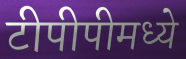
टीपीपीमध्ये